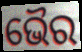
ଭୈର